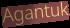
Agantuk